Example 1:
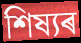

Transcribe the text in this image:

শিষ্যৰ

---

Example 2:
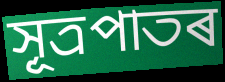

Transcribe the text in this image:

সূত্ৰপাতৰ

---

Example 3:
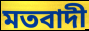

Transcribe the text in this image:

মতবাদী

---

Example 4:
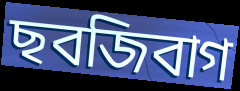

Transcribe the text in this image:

ছবজিবাগ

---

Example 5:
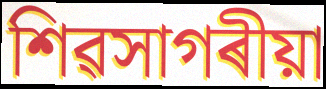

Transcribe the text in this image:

শিৱসাগৰীয়া